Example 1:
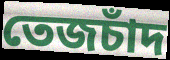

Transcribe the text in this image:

তেজচাঁদ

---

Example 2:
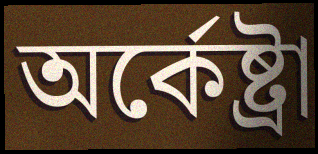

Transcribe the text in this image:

অর্কেষ্ট্রা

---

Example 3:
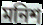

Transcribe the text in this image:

মনিশ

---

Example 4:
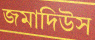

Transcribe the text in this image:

জমাদিউস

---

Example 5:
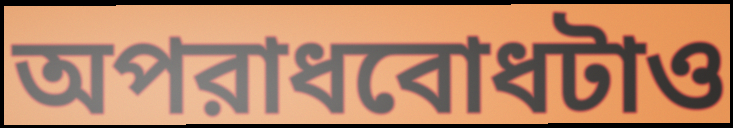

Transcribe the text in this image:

অপরাধবোধটাও